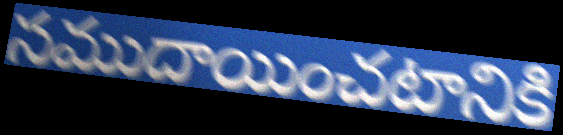
సముదాయించటానికి